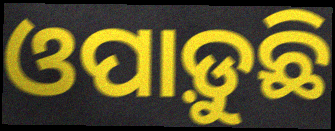
ଓପାଡ଼ୁଛି